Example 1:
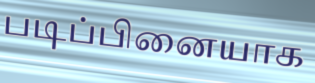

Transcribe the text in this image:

படிப்பினையாக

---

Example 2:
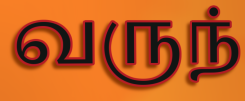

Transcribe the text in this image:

வருந்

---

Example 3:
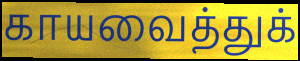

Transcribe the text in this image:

காயவைத்துக்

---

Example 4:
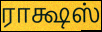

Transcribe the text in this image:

ராக்ஷஸ்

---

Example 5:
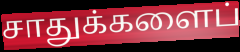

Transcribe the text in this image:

சாதுக்களைப்